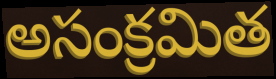
అసంక్రమిత